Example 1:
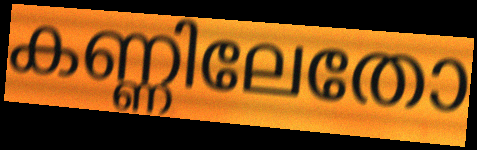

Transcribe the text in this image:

കണ്ണിലേതോ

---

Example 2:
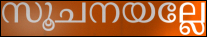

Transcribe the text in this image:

സൂചനയല്ലേ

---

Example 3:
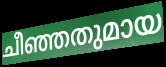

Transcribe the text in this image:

ചീഞ്ഞതുമായ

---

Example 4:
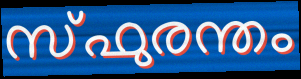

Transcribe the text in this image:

സ്ഫുരന്തം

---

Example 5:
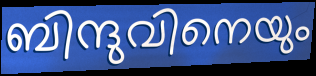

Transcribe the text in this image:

ബിന്ദുവിനെയും